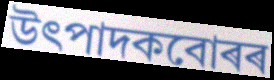
উৎপাদকবোৰৰ